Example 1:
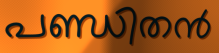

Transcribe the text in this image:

പണ്ഡിതൻ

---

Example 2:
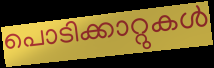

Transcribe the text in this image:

പൊടിക്കാറ്റുകൾ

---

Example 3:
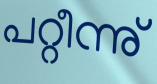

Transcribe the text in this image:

പറ്റീന്നു്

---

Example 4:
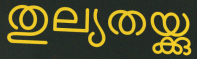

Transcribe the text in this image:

തുല്യതയ്ക്കു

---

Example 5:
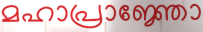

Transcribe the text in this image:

മഹാപ്രാജ്ഞോ